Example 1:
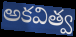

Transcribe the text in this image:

అకవిత్వ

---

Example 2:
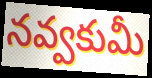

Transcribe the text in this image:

నవ్వకుమీ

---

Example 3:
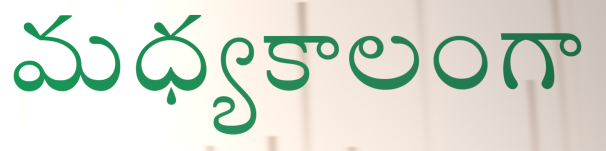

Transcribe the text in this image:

మధ్యకాలంగా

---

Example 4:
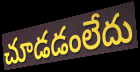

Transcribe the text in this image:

చూడడంలేదు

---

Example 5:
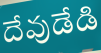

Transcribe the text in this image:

దేవుడేడి